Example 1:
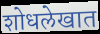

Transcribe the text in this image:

शोधलेखात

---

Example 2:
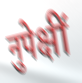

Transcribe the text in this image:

नुपेक्षीं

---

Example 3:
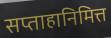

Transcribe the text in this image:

सप्ताहानिमित्त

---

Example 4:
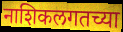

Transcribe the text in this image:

नाशिकलगतच्या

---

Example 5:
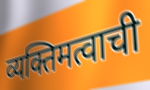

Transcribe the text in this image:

व्यक्तिमत्वाची